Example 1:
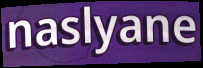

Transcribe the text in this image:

naslyane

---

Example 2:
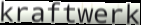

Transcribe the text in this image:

kraftwerk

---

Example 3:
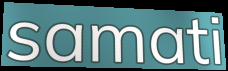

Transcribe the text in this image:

samati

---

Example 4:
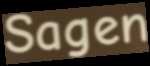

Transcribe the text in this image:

Sagen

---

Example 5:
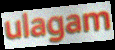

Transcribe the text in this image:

ulagam